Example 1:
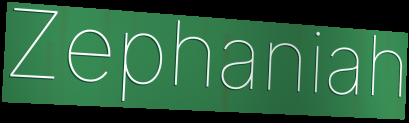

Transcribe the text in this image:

Zephaniah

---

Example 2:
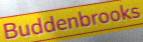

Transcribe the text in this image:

Buddenbrooks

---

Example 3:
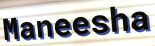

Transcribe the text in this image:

Maneesha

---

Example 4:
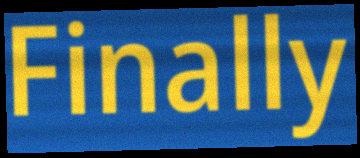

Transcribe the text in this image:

Finally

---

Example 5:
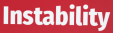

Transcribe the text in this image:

Instability